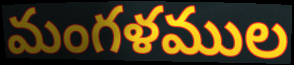
మంగళముల